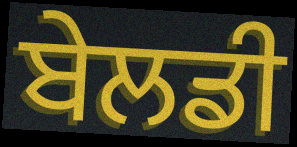
ਬੇਲਡੀ